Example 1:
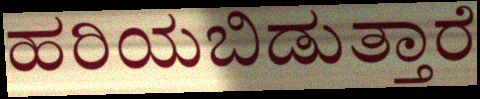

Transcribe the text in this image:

ಹರಿಯಬಿಡುತ್ತಾರೆ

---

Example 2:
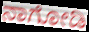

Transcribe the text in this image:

ನಾಗೋಡಿ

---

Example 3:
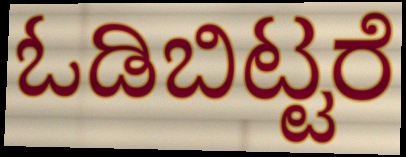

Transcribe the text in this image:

ಓಡಿಬಿಟ್ಟರೆ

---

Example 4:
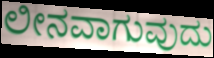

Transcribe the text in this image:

ಲೀನವಾಗುವುದು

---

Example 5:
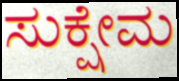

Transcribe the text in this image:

ಸುಕ್ಷೇಮ